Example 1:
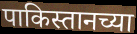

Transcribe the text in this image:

पाकिस्तानच्या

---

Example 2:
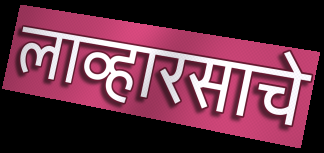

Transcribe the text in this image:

लाव्हारसाचे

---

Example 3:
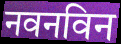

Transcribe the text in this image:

नवनविन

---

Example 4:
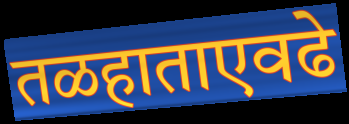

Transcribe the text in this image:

तळहाताएवढे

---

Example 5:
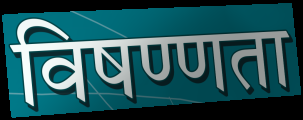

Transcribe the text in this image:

विषण्णता